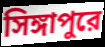
সিঙ্গাপুরে